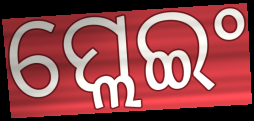
ପ୍ଲେଇଂ